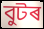
বুটৰ